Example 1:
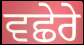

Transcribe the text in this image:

ਵਛੇਰੇ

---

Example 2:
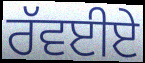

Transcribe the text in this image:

ਰੱਵਈਏ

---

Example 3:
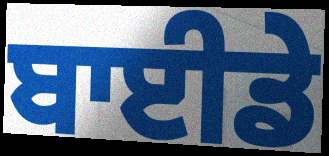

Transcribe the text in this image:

ਬਾਈਡੇ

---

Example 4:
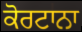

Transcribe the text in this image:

ਕੋਰਟਾਨਾ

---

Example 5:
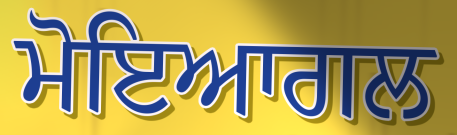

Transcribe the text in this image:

ਮੋਇਆਗਲ